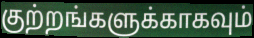
குற்றங்களுக்காகவும்